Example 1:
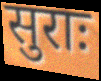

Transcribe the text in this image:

सुराः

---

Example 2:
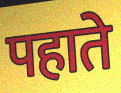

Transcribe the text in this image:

पहाते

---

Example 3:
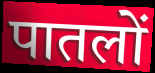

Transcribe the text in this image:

पातलों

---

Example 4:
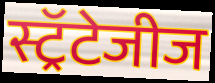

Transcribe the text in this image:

स्ट्रॅटेजीज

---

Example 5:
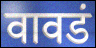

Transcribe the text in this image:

वावडं